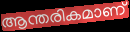
ആന്തരികമാണ്